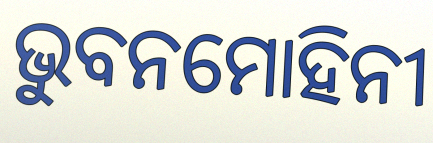
ଭୁବନମୋହିନୀ